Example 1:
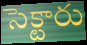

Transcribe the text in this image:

సెక్టారు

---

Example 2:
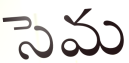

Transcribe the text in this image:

సెమ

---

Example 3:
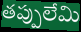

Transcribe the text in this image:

తప్పులేమి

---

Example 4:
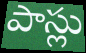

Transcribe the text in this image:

పాస్లు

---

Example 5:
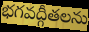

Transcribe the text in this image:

భగవద్గీతలను